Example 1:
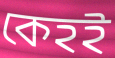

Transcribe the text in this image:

কেহই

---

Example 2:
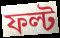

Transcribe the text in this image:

ফল্ট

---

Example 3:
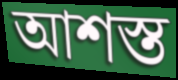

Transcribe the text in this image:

আশস্ত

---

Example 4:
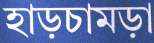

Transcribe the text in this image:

হাড়চামড়া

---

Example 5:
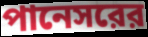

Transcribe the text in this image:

পানেসরের